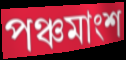
পঞ্চমাংশ